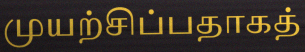
முயற்சிப்பதாகத்